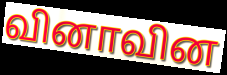
வினாவின